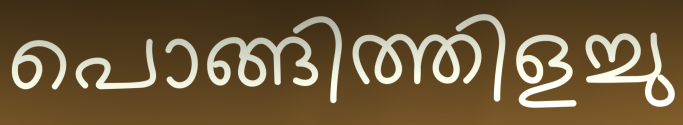
പൊങ്ങിത്തിളച്ചു